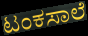
ಟಂಕಸಾಲೆ